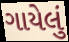
ગાયેલું